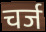
चर्ज